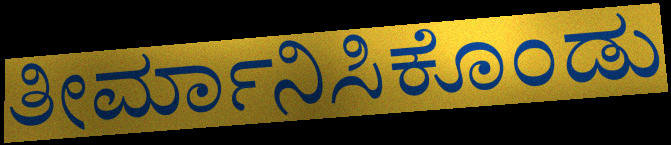
ತೀರ್ಮಾನಿಸಿಕೊಂಡು